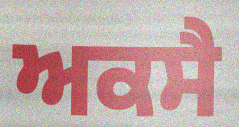
ਅਕਸੈ